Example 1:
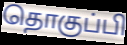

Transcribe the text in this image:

தொகுப்பி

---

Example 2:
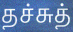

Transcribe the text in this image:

தச்சுத்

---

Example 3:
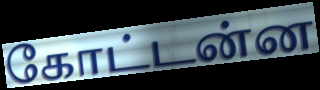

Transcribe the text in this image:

கோட்டன்ன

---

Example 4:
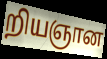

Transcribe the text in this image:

றியஞான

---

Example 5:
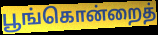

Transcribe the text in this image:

பூங்கொன்றைத்